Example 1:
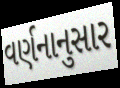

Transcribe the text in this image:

વર્ણનાનુસાર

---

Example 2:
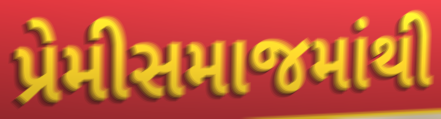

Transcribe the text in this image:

પ્રેમીસમાજમાંથી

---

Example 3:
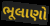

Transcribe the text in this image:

ભૂલાણો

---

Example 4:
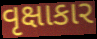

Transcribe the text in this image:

વૃક્ષાકાર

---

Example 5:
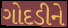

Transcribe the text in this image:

ગોદડીને